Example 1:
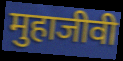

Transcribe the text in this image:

मुहाजीवी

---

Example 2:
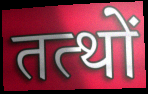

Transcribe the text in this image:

तत्थों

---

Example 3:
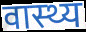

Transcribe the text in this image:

वास्थ्य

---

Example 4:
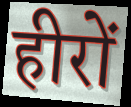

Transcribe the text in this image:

हीरों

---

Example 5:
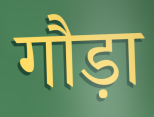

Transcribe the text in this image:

गौड़ा